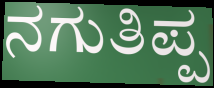
ನಗುತಿಪ್ಪ